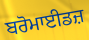
ਬਰੋਮਾਈਡਜ਼